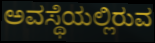
ಅವಸ್ಥೆಯಲ್ಲಿರುವ